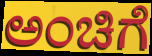
ಅಂಚಿಗೆ